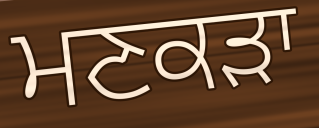
ਮਣਕੜਾ